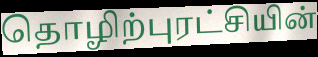
தொழிற்புரட்சியின்